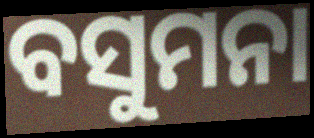
ବସୁମନା